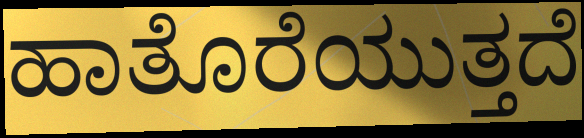
ಹಾತೊರೆಯುತ್ತದೆ